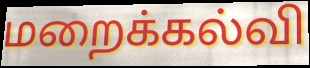
மறைக்கல்வி